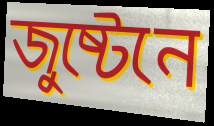
জুষ্টেনে